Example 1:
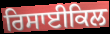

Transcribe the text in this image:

ਰਿਸਾਈਕਿਲ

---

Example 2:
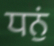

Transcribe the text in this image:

ਧਨੁਂ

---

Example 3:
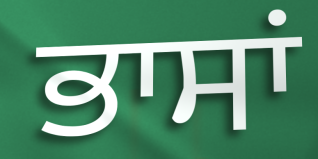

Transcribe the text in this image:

ਭਾਸਾਂ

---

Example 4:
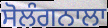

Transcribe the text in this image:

ਸੋਲੰਗਨਾਲਾ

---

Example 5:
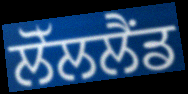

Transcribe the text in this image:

ਲੋੱਲਲੈਂਡ